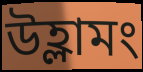
উহ্লামং